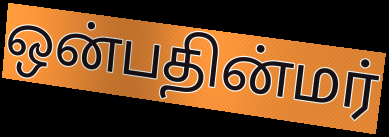
ஒன்பதின்மர்